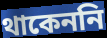
থাকেননি